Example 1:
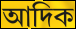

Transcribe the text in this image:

আদিক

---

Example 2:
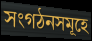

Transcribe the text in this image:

সংগঠনসমূহে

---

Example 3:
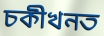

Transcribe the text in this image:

চকীখনত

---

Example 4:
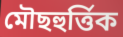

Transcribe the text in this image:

মৌছহুৰ্ত্তিক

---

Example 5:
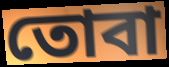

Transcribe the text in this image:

তোবা